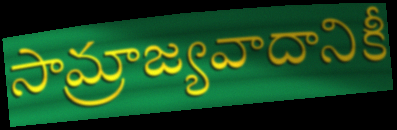
సామ్రాజ్యవాదానికీ